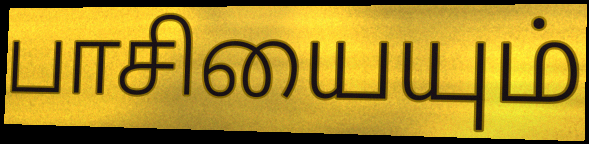
பாசியையும்